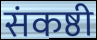
संकष्ठी